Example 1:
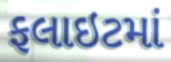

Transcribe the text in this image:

ફલાઇટમાં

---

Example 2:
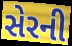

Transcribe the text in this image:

સેરની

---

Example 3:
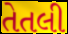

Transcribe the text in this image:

તેતલી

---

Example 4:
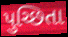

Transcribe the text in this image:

પુચ્છિતા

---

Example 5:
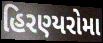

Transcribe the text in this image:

હિરણ્યરોમા